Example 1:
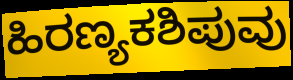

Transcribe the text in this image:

ಹಿರಣ್ಯಕಶಿಪುವು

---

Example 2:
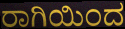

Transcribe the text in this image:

ರಾಗಿಯಿಂದ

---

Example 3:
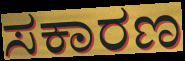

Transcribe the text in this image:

ಸಕಾರಣ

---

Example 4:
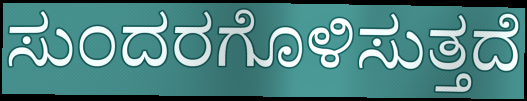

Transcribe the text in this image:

ಸುಂದರಗೊಳಿಸುತ್ತದೆ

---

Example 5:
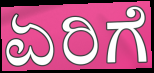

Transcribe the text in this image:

ಏರಿಗೆ